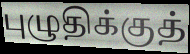
புழுதிக்குத்